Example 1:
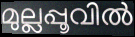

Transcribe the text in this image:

മുല്ലപ്പൂവിൽ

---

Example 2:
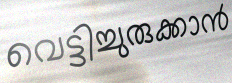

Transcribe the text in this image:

വെട്ടിച്ചുരുക്കാൻ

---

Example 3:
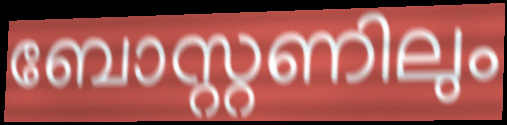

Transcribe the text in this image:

ബോസ്റ്റണിലും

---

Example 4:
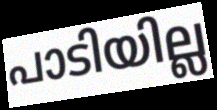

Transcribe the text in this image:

പാടിയില്ല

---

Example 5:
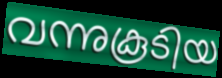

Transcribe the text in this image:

വന്നുകൂടിയ